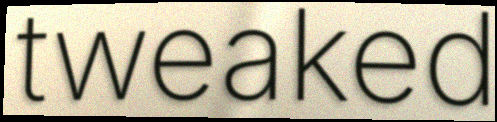
tweaked